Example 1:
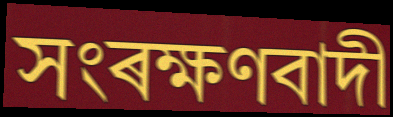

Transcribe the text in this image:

সংৰক্ষণবাদী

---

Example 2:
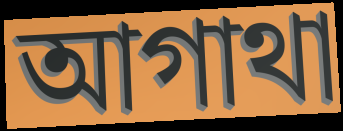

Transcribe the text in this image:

আগাথা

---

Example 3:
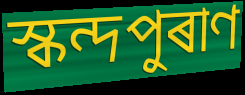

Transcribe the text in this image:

স্কন্দপুৰাণ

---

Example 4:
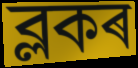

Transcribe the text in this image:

ব্লকৰ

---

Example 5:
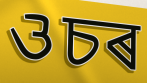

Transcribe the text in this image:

ওচৰ